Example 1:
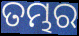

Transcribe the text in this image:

ତମ୍ଭର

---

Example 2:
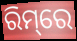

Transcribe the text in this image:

ରିମ୍‌ରେ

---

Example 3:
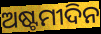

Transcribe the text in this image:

ଅଷ୍ଟମୀଦିନ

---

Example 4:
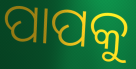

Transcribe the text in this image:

ପାପକୁ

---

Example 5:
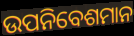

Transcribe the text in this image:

ଉପନିବେଶମାନ